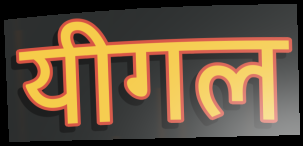
यीगल